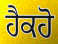
ਹੈਕਹੋ